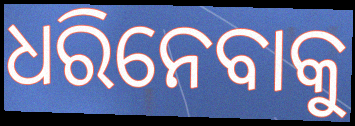
ଧରିନେବାକୁ